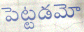
పెట్టడమో